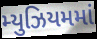
મ્યુઝિયમમાં